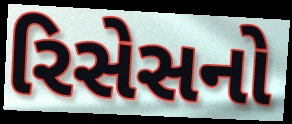
રિસેસનો